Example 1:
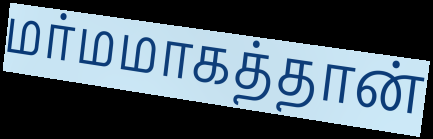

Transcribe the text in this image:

மர்மமாகத்தான்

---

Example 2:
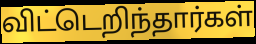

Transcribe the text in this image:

விட்டெறிந்தார்கள்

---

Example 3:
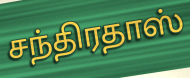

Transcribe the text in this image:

சந்திரதாஸ்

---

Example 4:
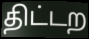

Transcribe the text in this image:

திட்டற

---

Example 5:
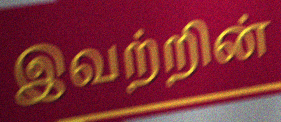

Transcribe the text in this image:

இவற்றின்